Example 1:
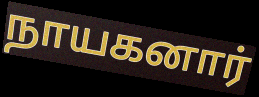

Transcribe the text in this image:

நாயகனார்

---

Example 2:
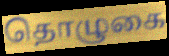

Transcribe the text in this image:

தொழுகை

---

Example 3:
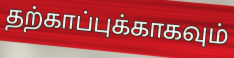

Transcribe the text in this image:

தற்காப்புக்காகவும்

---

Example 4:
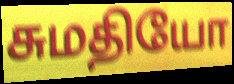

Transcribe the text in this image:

சுமதியோ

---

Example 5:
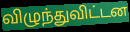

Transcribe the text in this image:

விழுந்துவிட்டன